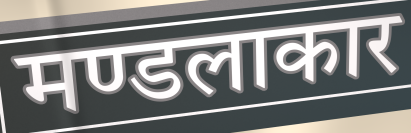
मण्डलाकार